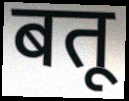
बतू